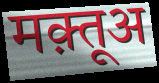
मक़्तूअ